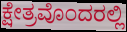
ಕ್ಷೇತ್ರವೊಂದರಲ್ಲಿ